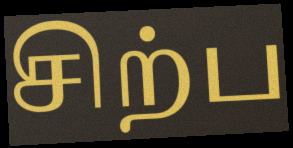
சிற்ப